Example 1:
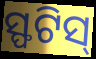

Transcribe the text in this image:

ସ୍ଫଟିସ୍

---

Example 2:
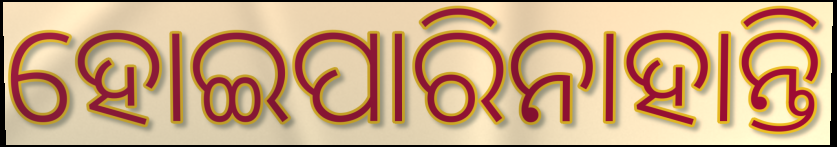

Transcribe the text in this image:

ହୋଇପାରିନାହାନ୍ତି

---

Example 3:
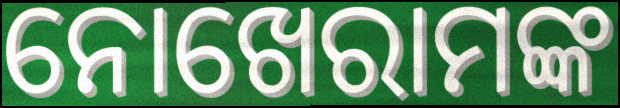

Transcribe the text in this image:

ନୋଖେରାମଙ୍କ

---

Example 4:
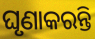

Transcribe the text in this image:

ଘୃଣାକରନ୍ତି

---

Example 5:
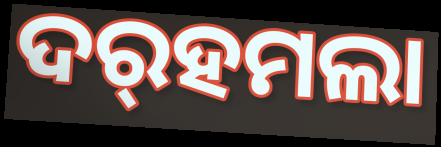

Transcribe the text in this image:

ଦର୍‌ହମଲା